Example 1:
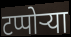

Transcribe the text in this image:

टप्पोऱ्या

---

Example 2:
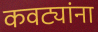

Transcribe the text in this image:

कवट्यांना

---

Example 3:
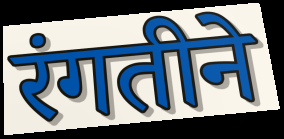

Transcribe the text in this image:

रंगतीने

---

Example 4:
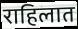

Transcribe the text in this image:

राहिलात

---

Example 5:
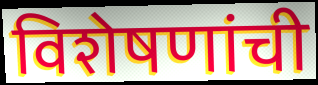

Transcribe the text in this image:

विशेषणांची